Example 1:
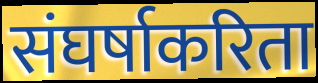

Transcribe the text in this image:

संघर्षाकरिता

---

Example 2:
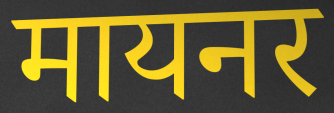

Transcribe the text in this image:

मायनर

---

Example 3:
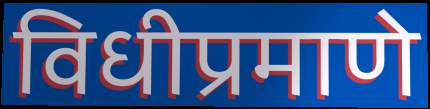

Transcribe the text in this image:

विधीप्रमाणे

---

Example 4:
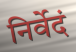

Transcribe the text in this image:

निर्वेदं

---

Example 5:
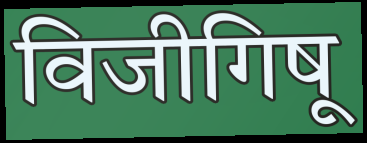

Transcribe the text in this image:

विजीगिषू